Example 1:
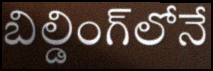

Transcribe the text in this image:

బిల్డింగ్‌లోనే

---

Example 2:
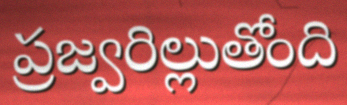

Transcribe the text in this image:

ప్రజ్వరిల్లుతోంది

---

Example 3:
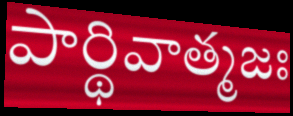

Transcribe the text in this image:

పార్థివాత్మజః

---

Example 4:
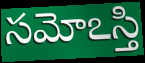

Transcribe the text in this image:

సమోఽస్తి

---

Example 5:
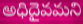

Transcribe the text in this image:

అధిదైవమని